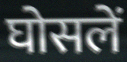
घोसलें